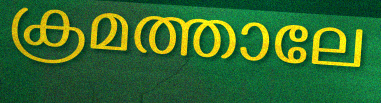
ക്രമത്താലേ